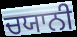
ਚਯਾਨੀ